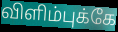
விளிம்புக்கே